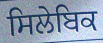
ਸਿਲੇਬਿਕ